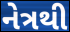
નેત્રથી